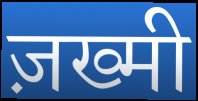
ज़ख्मी